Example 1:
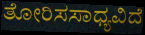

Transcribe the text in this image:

ತೋರಿಸಸಾಧ್ಯವಿದೆ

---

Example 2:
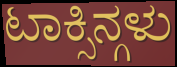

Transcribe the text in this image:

ಟಾಕ್ಸಿನ್ಗಳು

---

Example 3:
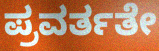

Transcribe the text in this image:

ಪ್ರವರ್ತತೇ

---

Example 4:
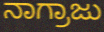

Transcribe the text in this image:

ನಾಗ್ರಾಜು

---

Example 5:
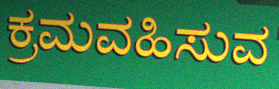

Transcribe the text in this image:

ಕ್ರಮವಹಿಸುವ